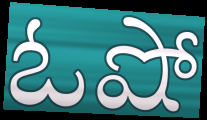
ఓషో